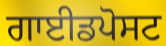
ਗਾਈਡਪੋਸਟ